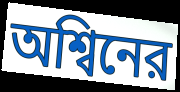
অশ্বিনের